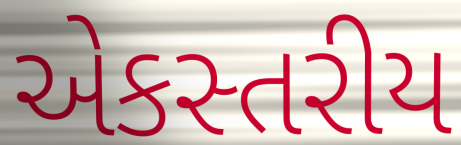
એકસ્તરીય